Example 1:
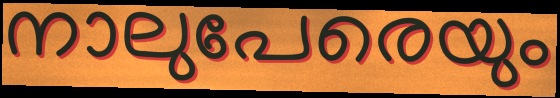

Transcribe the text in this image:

നാലുപേരെയും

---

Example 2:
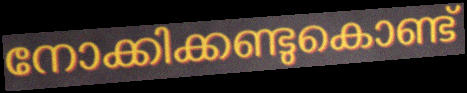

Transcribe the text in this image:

നോക്കിക്കണ്ടുകൊണ്ട്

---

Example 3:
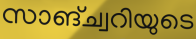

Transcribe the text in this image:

സാങ്ച്വറിയുടെ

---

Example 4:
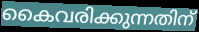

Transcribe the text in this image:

കൈവരിക്കുന്നതിന്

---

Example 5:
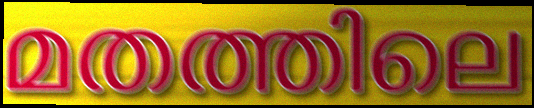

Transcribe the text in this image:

മതത്തിലെ